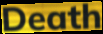
Death